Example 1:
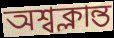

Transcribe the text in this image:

অশ্বক্লান্ত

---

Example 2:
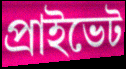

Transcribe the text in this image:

প্ৰাইভেট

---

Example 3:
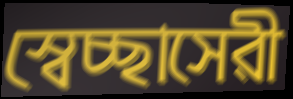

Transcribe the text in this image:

স্বেচ্ছাসেৱী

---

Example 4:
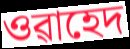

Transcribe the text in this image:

ওৱাহেদ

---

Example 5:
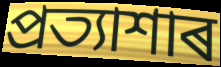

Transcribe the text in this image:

প্ৰত্যাশাৰ